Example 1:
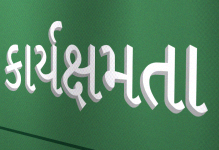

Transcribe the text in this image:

કાર્યક્ષમતા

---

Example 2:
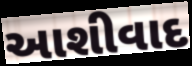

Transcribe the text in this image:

આશીવાદ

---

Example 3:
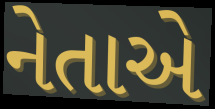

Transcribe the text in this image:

નેતાએ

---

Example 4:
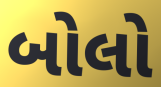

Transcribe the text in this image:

બોલો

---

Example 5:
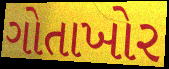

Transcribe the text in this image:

ગોતાખોર